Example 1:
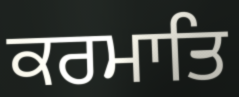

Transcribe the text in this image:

ਕਰਮਾਤਿ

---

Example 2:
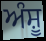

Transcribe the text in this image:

ਅੰਸ਼ੂ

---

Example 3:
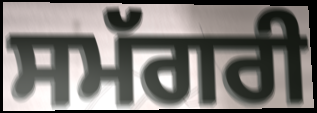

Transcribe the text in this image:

ਸਮੱਗਰੀ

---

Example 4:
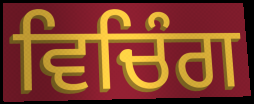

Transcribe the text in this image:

ਵਿਚਿੰਗ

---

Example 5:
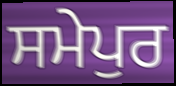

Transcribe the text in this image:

ਸਮੇਪੁਰ